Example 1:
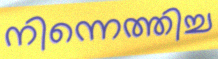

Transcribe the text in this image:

നിന്നെത്തിച്ച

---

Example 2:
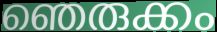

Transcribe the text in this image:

ഞെരുക്കം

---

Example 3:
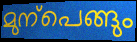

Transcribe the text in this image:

മുന്പെങ്ങും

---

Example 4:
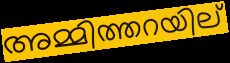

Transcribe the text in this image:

അമ്മിത്തറയില്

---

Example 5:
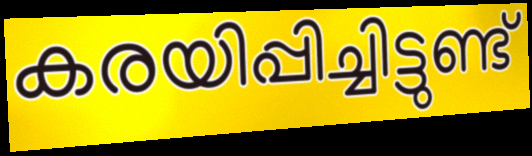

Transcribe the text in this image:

കരയിപ്പിച്ചിട്ടുണ്ട്